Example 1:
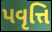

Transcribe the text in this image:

પવૃત્તિ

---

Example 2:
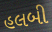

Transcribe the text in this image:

હલબી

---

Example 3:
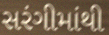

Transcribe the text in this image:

સરંગીમાંથી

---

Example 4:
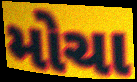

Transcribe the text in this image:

મોચા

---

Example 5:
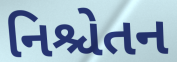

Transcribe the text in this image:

નિશ્ચેતન